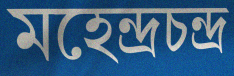
মহেন্দ্রচন্দ্র